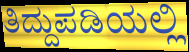
ತಿದ್ದುಪಡಿಯಲ್ಲಿ